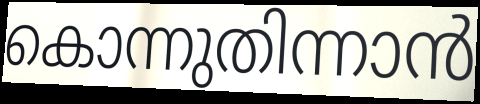
കൊന്നുതിന്നാൻ